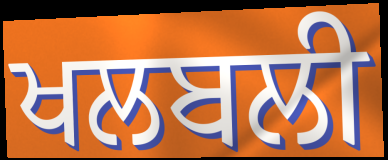
ਖਲਬਲੀ